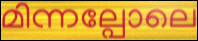
മിന്നല്പോലെ